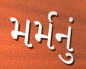
મર્મનું